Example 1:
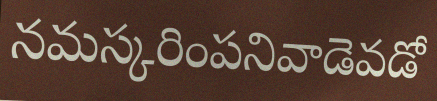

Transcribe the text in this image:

నమస్కరింపనివాడెవడో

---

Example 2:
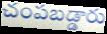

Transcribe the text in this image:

చంపబడ్డారు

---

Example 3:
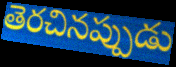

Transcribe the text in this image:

తెరచినప్పుడు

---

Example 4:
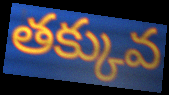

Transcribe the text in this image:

తక్కువ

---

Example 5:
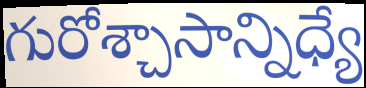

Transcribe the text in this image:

గురోశ్చాసాన్నిధ్యే